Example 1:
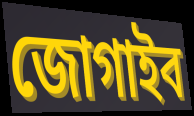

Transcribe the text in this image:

জোগাইব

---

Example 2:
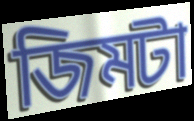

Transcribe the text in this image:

জিমটা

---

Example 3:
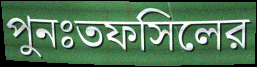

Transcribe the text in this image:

পুনঃতফসিলের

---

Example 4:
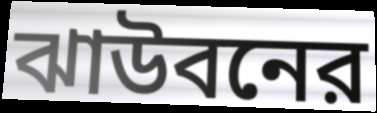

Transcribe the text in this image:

ঝাউবনের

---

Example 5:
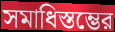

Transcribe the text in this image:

সমাধিস্তম্ভের